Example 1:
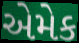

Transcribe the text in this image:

એમેક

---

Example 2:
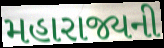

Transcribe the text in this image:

મહારાજ્યની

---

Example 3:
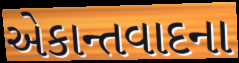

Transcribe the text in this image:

એકાન્તવાદના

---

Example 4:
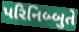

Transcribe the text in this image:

પરિનિબ્બુતે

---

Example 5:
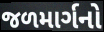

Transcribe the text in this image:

જળમાર્ગનો